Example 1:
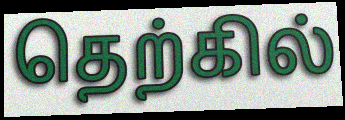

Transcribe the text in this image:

தெற்கில்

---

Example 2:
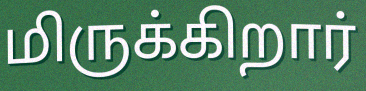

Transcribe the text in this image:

மிருக்கிறார்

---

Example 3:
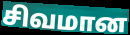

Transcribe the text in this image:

சிவமான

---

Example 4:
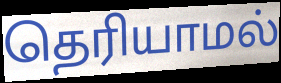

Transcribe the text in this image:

தெரியாமல்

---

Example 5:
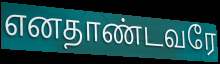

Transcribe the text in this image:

எனதாண்டவரே